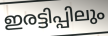
ഇരട്ടിപ്പിലും